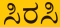
ಸಿರಸಿ